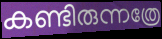
കണ്ടിരുന്നത്രേ